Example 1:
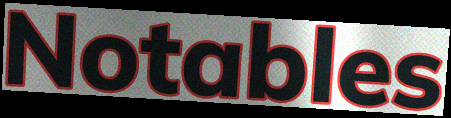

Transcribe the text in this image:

Notables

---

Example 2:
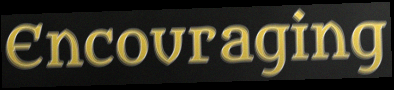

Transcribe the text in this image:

Encouraging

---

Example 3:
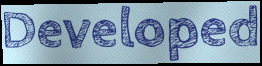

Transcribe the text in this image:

Developed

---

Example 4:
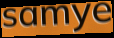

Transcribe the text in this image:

samye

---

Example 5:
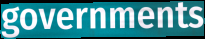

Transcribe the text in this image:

governments